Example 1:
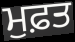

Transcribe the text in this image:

ਮੁਫ਼ਤ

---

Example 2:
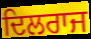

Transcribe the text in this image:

ਦਿਲਰਾਜ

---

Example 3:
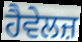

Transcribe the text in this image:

ਹੈਵੇਲਜ਼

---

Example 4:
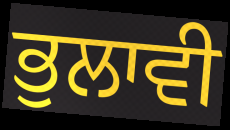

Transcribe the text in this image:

ਭੁਲਾਵੀ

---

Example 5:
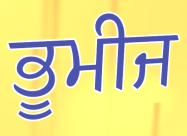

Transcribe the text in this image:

ਭੂਮੀਜ